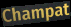
Champat